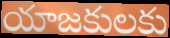
యాజకులకు